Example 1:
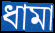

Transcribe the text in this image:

ধামা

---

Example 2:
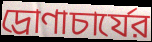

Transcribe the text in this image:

দ্রোণাচার্যের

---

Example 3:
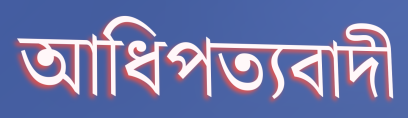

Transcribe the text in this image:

আধিপত্যবাদী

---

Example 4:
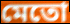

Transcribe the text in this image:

মেতো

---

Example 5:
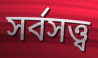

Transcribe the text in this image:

সর্বসত্ত্ব